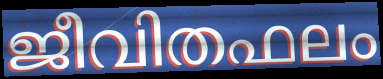
ജീവിതഫലം